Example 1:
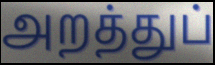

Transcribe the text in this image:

அறத்துப்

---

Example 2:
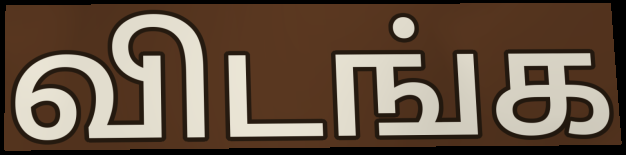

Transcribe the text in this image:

விடங்க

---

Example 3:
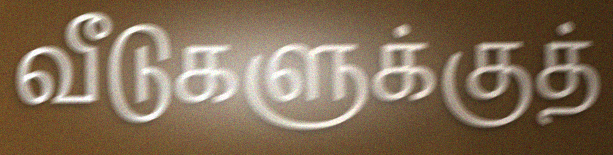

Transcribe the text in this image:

வீடுகளுக்குத்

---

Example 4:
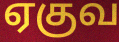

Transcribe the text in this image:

ஏகுவ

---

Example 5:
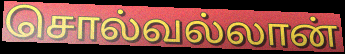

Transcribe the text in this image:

சொல்வல்லான்